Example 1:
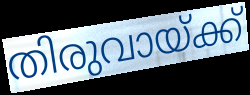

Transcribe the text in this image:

തിരുവായ്ക്ക്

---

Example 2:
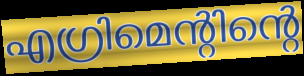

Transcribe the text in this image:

എഗ്രിമെന്റിന്റെ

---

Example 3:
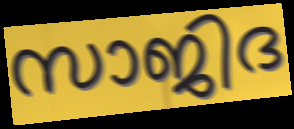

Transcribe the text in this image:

സാജിദ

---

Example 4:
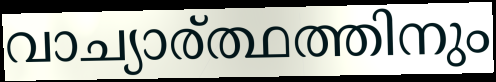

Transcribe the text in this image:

വാച്യാര്ത്ഥത്തിനും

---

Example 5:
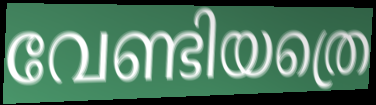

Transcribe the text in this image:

വേണ്ടിയത്രെ